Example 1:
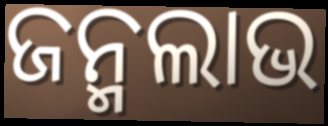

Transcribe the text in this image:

ଜନ୍ମଲାଭ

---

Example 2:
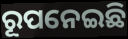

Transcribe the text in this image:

ରୂପନେଇଛି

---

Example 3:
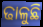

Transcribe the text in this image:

ଢାଳୁଛି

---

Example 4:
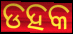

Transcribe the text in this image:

ଡହକ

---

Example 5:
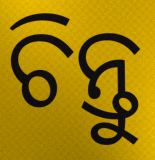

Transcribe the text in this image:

ଚିନ୍ତୁ